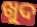
ଖୁଦ